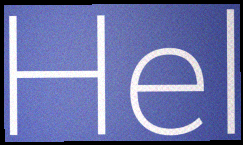
Hel